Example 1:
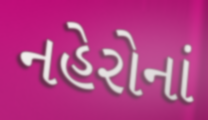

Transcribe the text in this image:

નહેરોનાં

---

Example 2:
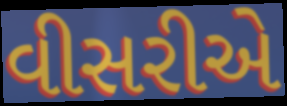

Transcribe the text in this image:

વીસરીએ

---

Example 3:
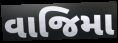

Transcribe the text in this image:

વાજિમા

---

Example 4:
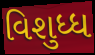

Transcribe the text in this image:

વિશુધ્ધ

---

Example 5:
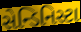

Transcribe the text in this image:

સેન્ડિનિસ્ટા